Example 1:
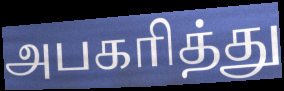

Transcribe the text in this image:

அபகரித்து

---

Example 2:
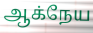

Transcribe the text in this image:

ஆக்நேய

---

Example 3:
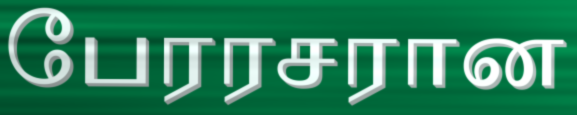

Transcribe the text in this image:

பேரரசரான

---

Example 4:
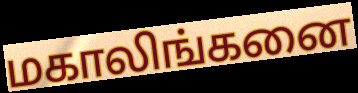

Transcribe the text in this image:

மகாலிங்கனை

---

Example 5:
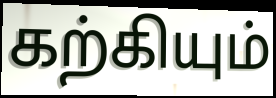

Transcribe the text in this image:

கற்கியும்